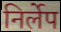
निर्लेप